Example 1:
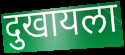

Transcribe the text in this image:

दुखायला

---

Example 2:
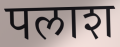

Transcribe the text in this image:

पलाश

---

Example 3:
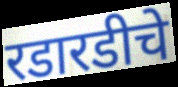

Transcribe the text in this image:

रडारडीचे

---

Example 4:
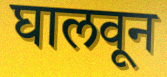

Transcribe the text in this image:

घालवून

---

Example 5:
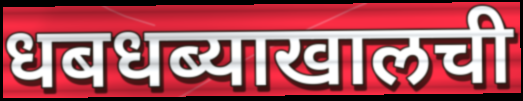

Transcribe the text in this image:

धबधब्याखालची